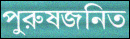
পুরুষজনিত